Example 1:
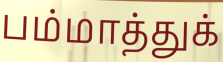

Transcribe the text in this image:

பம்மாத்துக்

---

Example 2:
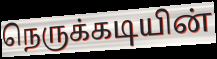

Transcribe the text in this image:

நெருக்கடியின்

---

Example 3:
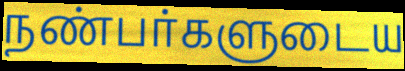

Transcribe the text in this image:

நண்பர்களுடைய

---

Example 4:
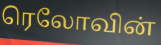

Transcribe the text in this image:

ரெலோவின்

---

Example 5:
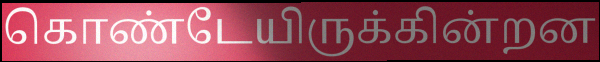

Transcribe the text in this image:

கொண்டேயிருக்கின்றன